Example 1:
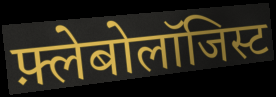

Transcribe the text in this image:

फ़्लेबोलॉजिस्ट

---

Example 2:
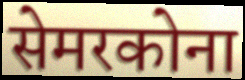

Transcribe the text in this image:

सेमरकोना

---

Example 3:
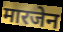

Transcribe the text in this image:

मारजेन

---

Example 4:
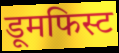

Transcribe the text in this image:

डूमफिस्ट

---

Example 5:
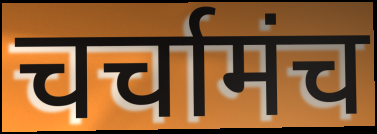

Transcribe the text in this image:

चर्चामंच